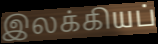
இலக்கியப்